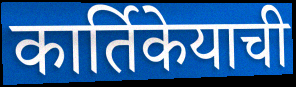
कार्तिकेयाची